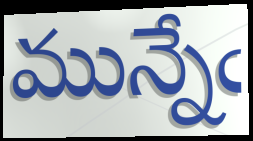
మున్నేఁ